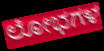
ಲೋಭಗಳ